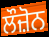
ਲੌਜ਼ੋਨ